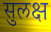
सुलक्ष